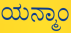
ಯನ್ಮಾಂ